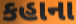
કહાના